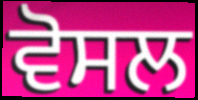
ਵੋਸਲ